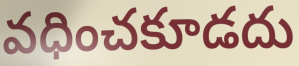
వధించకూడదు